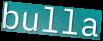
bulla